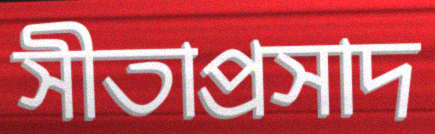
সীতাপ্রসাদ